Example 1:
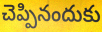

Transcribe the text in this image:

చెప్పినందుకు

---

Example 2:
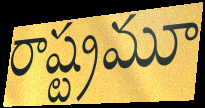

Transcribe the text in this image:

రాష్ట్రమూ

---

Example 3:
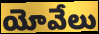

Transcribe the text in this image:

యోవేలు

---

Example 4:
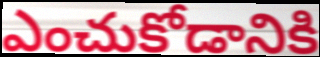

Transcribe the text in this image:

ఎంచుకోడానికి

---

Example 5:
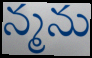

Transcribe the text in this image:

న్మను